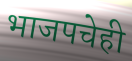
भाजपचेही